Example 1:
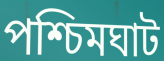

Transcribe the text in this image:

পশ্চিমঘাট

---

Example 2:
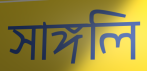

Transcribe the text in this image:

সাঙ্গলি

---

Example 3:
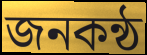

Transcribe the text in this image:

জনকন্ঠ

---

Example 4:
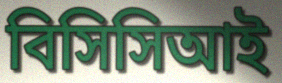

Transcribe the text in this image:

বিসিসিআই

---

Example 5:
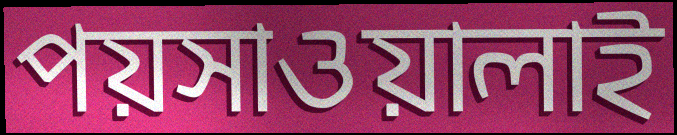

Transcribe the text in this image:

পয়সাওয়ালাই